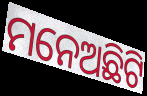
ମନେଅଛିଟି